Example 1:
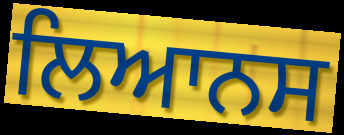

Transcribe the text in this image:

ਲਿਆਨਸ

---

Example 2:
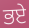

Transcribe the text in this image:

ਭਏ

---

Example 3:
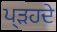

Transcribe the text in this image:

ਪ੍ੜਹਦੇ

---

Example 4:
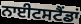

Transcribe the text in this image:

ਨਾਈਟਸਟੈਂਡਾਂ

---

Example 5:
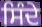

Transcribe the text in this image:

ਸਿੰਦੇ